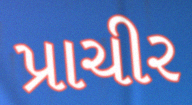
પ્રાચીર